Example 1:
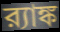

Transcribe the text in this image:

র‍্যাঙ্ক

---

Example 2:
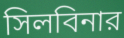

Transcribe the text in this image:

সিলবিনার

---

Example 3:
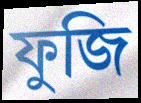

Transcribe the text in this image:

ফুজি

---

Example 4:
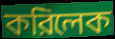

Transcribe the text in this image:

করিলেক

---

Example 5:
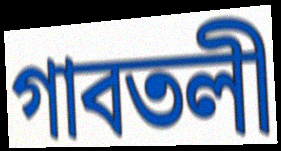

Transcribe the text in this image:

গাবতলী